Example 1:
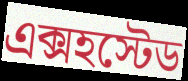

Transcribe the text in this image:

এক্সহস্টেড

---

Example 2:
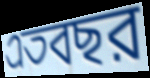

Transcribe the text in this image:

এতবছর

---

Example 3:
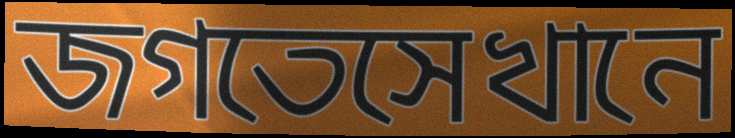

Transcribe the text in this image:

জগতেসেখানে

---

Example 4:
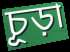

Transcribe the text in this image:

চূড়া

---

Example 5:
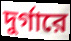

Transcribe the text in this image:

দুর্গারে